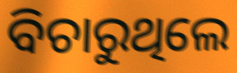
ବିଚାରୁଥିଲେ